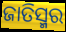
ଜାତିସ୍ମର